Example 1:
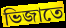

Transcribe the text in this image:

ভিজাতে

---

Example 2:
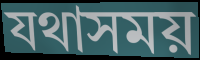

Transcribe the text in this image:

যথাসময়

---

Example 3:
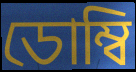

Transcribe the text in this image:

ডোম্বি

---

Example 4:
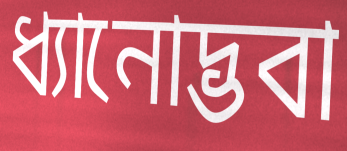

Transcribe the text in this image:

ধ্যানোদ্ভবা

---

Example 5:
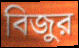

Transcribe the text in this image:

বিজুর